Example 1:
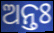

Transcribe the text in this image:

ଅନ୍ତଃ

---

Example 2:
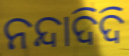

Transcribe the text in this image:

ନନ୍ଦାଦିଦି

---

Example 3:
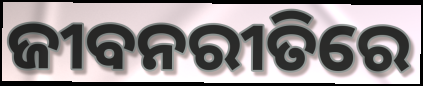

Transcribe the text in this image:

ଜୀବନରୀତିରେ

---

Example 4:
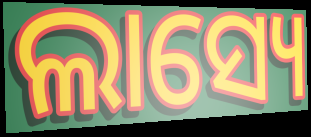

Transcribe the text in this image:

ଲାସ୍ୟେ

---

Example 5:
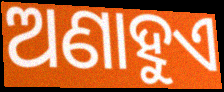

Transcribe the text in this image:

ଅଣାହୁଏ